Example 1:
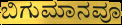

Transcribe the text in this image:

ಬಿಗುಮಾನವೂ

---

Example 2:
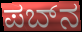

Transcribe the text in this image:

ಪಬ್‌ನ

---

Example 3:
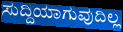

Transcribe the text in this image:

ಸುದ್ದಿಯಾಗುವುದಿಲ್ಲ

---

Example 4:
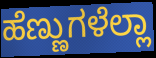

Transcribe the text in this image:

ಹೆಣ್ಣುಗಳೆಲ್ಲಾ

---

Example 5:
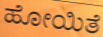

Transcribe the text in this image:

ಹೋಯಿತೆ